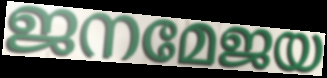
ജനമേജയ